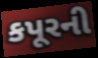
કપૂરની